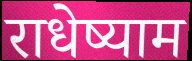
राधेष्याम